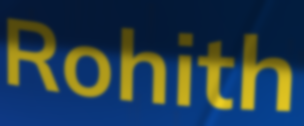
Rohith